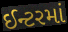
ઈન્ટરમાં